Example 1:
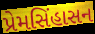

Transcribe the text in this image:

પ્રેમસિંહાસન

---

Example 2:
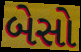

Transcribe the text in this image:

બેસો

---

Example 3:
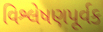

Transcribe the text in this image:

વિશ્લેષણપૂર્વક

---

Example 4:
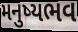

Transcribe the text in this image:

મનુષ્યભવ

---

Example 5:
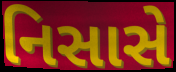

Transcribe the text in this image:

નિસાસે